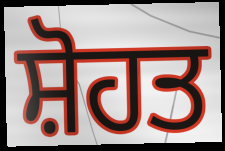
ਸ਼ੋਹਤ